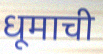
धूमाची